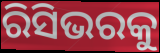
ରିସିଭରକୁ